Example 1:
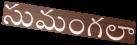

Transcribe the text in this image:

సుమంగలా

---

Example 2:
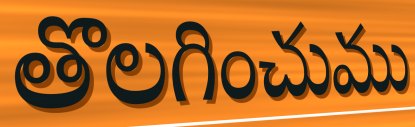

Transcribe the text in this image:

తొలగించుము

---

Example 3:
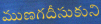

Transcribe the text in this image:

ముణగదీసుకుని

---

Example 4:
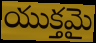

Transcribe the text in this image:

యుక్తమై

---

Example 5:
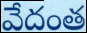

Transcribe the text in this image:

వేదంత